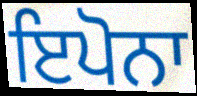
ਇਪੋਨਾ